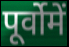
पूर्वोमें